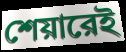
শেয়ারেই